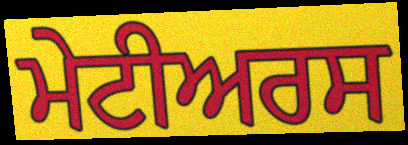
ਮੇਟੀਅਰਸ